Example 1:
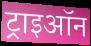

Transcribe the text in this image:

ट्राइऑन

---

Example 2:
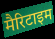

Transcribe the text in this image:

मैरिटाइम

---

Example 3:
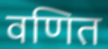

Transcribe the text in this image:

वणित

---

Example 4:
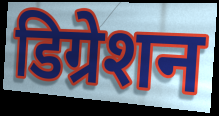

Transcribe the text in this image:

डिग्रेशन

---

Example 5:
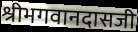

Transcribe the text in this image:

श्रीभगवानदासजी